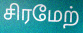
சிரமேற்